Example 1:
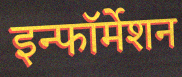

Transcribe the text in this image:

इन्फॉर्मेशन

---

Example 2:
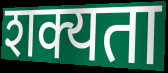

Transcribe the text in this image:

शक्‍यता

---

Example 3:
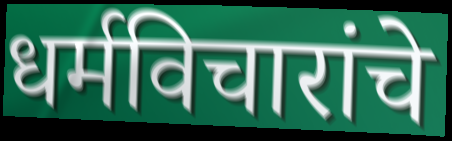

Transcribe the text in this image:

धर्मविचारांचे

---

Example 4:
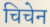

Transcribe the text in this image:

चिचेन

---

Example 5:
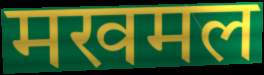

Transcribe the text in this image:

मखमल